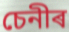
চেনীৰ